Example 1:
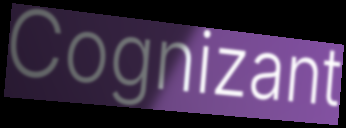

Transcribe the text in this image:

Cognizant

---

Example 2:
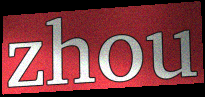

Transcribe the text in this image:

zhou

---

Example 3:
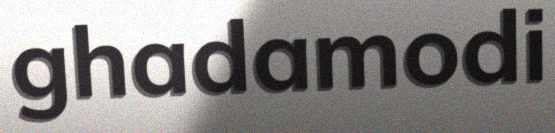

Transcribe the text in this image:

ghadamodi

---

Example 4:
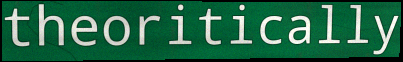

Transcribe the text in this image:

theoritically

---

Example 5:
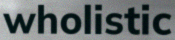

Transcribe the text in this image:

wholistic